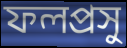
ফলপ্ৰসু